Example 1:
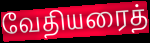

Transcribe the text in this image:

வேதியரைத்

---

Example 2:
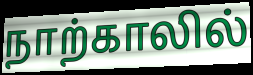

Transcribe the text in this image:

நாற்காலில்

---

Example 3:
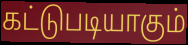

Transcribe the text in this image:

கட்டுபடியாகும்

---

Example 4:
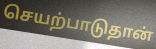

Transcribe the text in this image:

செயற்பாடுதான்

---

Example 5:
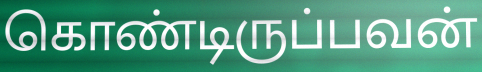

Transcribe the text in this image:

கொண்டிருப்பவன்